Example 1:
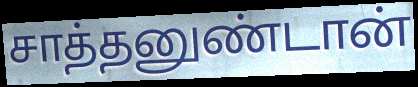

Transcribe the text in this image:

சாத்தனுண்டான்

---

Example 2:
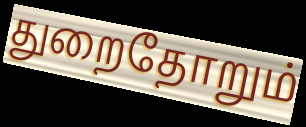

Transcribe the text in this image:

துறைதோறும்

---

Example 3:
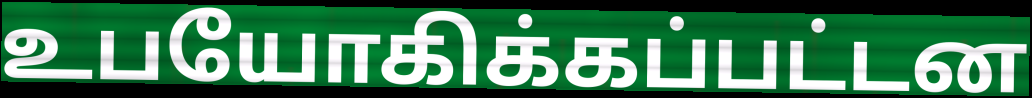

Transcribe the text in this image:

உபயோகிக்கப்பட்டன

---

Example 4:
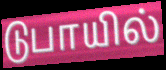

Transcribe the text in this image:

டுபாயில்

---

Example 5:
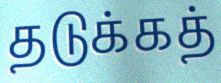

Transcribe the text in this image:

தடுக்கத்